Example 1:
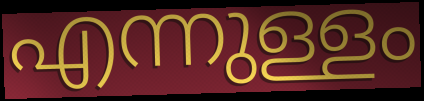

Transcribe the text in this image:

എന്നുള്ളം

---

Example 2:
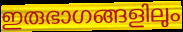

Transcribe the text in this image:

ഇരുഭാഗങ്ങളിലും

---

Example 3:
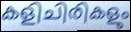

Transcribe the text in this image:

കളിചിരികളും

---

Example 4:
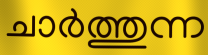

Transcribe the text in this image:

ചാർത്തുന്ന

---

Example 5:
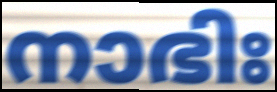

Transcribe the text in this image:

നാഭിഃ